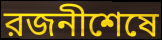
রজনীশেষে